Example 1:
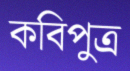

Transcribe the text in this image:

কবিপুত্র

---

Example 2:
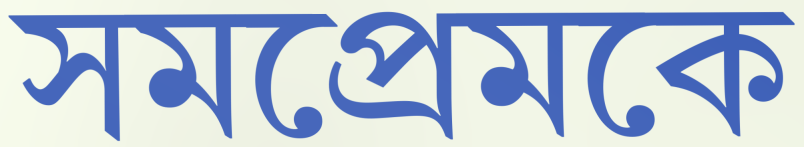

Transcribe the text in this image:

সমপ্রেমকে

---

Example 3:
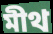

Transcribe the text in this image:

মীথ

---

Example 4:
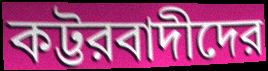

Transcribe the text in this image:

কট্টরবাদীদের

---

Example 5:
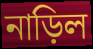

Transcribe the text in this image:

নাড়িল